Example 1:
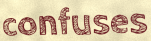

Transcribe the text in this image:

confuses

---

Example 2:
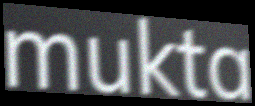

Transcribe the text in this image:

mukta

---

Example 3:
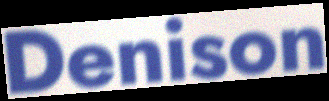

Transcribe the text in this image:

Denison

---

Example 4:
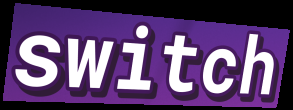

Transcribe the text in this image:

switch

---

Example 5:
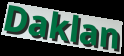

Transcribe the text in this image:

Daklan